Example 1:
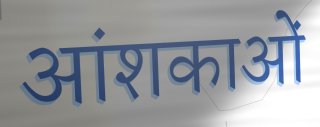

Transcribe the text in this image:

आंशकाओं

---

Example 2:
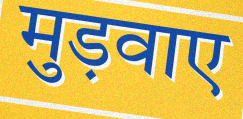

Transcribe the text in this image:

मुड़वाए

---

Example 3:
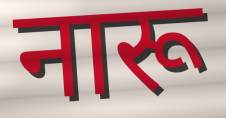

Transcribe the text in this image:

नारू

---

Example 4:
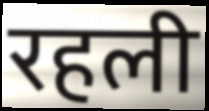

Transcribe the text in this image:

रहली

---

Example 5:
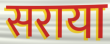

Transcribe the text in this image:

सराया